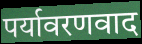
पर्यावरणवाद